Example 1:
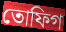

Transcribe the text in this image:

তোফিগ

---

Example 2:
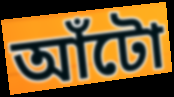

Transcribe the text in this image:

আঁটো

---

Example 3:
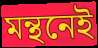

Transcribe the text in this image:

মন্থনেই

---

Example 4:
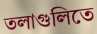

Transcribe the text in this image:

তলাগুলিতে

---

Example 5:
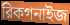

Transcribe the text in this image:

রিকগনাইজ